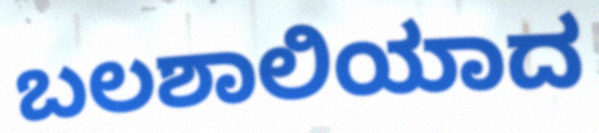
ಬಲಶಾಲಿಯಾದ